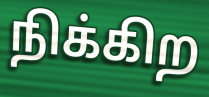
நிக்கிற